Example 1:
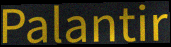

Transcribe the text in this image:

Palantir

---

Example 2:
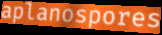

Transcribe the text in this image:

aplanospores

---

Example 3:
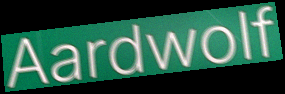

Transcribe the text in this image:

Aardwolf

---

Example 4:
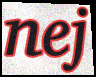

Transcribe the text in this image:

nej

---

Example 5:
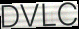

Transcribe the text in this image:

DVLC